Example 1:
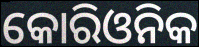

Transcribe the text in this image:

କୋରିଓନିକ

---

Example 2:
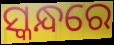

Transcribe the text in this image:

ସ୍କନ୍ଧରେ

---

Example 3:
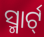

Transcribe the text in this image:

ସ୍ମାର୍ଟ୍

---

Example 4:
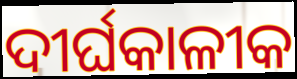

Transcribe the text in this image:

ଦୀର୍ଘକାଳୀକ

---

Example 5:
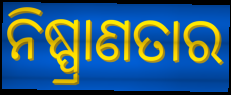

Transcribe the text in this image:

ନିଷ୍ପ୍ରାଣତାର